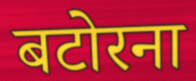
बटोरना